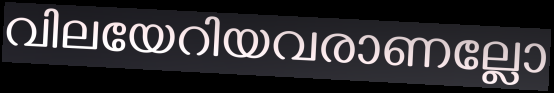
വിലയേറിയവരാണല്ലോ